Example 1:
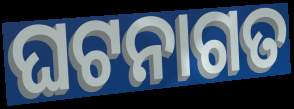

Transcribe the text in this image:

ଘଟନାଗତ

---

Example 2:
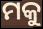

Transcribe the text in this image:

ମକୁ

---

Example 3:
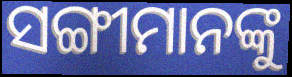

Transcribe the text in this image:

ସଙ୍ଗୀମାନଙ୍କୁ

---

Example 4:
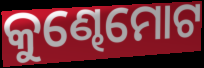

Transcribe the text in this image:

କୁଣ୍ଢେମୋଟ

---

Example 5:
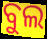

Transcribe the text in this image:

ବୁଲ